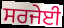
ਸਰਜੇਈ